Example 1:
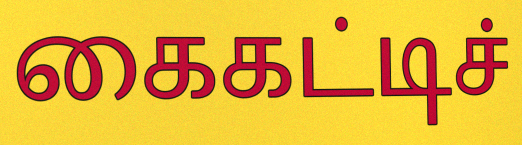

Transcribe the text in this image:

கைகட்டிச்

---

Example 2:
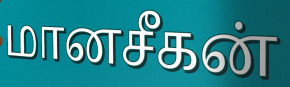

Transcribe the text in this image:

மானசீகன்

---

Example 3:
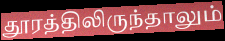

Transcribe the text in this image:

தூரத்திலிருந்தாலும்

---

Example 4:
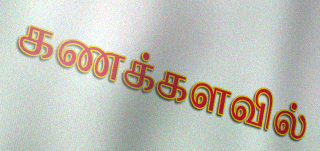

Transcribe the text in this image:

கணக்களவில்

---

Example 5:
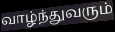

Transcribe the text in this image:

வாழ்ந்துவரும்